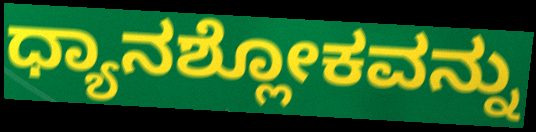
ಧ್ಯಾನಶ್ಲೋಕವನ್ನು